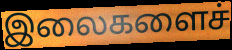
இலைகளைச்